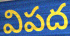
విపద